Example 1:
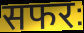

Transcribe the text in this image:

सफरः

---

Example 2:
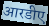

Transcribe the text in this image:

आरडीए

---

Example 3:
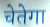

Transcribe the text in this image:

चेतेगा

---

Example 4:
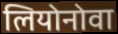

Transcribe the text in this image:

लियोनोवा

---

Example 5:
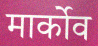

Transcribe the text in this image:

मार्कोव